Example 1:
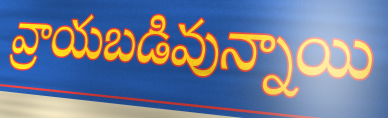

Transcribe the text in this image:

వ్రాయబడివున్నాయి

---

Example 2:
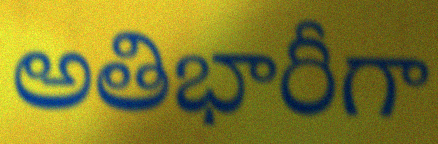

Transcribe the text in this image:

అతిభారీగా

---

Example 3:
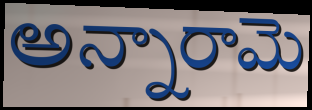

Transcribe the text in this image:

అన్నారామె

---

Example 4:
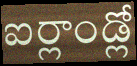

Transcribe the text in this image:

ఐర్లాండ్లో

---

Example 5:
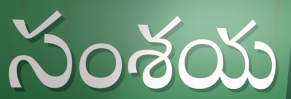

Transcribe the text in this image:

సంశయ